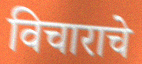
विचाराचे